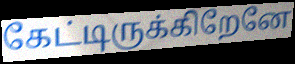
கேட்டிருக்கிறேனே